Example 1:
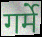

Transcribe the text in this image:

गर्मे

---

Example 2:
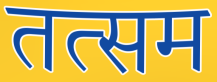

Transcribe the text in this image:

तत्सम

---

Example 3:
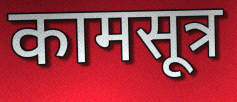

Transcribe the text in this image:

कामसूत्र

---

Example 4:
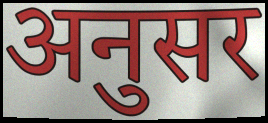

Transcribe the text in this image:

अनुसर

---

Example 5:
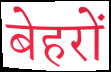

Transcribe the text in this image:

बेहरों